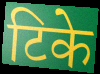
टिके